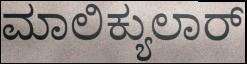
ಮಾಲಿಕ್ಯುಲಾರ್